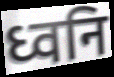
ध्वनि